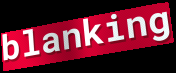
blanking